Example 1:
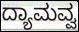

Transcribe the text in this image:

ದ್ಯಾಮವ್ವ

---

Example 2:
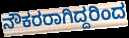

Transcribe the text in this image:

ನೌಕರರಾಗಿದ್ದರಿಂದ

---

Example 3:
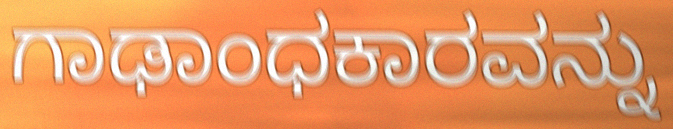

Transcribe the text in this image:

ಗಾಢಾಂಧಕಾರವನ್ನು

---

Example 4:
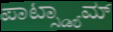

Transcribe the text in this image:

ಪಾಟ್ಸ್ಡ್ಯಾಮ್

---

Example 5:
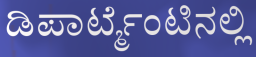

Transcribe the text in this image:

ಡಿಪಾರ್ಟ್ಮೆಂಟಿನಲ್ಲಿ